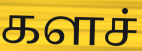
களச்